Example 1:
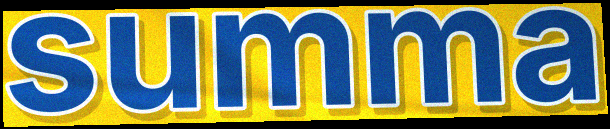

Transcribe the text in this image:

summa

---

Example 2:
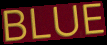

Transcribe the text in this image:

BLUE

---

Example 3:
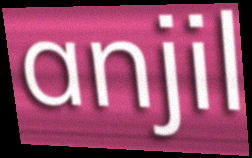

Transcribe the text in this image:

anjil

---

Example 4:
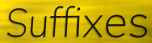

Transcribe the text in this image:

Suffixes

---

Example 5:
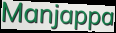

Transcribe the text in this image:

Manjappa